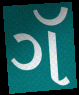
ગૅ